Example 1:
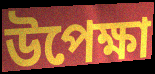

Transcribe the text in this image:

উপেক্ষা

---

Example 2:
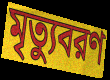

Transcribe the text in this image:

মৃত্যুবরণ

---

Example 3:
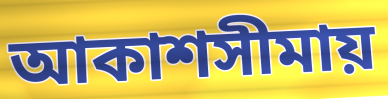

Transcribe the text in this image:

আকাশসীমায়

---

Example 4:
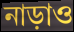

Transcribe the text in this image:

নাড়াও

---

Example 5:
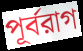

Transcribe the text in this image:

পূর্বরাগ